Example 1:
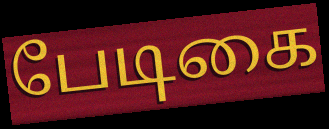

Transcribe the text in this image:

பேடிகை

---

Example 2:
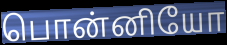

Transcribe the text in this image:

பொன்னியோ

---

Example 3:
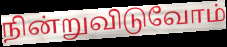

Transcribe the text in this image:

நின்றுவிடுவோம்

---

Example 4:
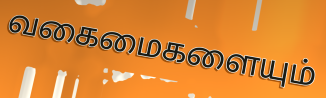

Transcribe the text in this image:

வகைமைகளையும்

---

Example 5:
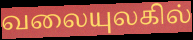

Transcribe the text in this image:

வலையுலகில்